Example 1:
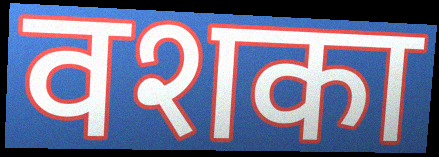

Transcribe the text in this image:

वशका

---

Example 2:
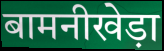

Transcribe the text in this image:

बामनीखेड़ा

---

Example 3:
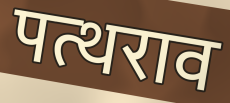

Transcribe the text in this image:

पत्थराव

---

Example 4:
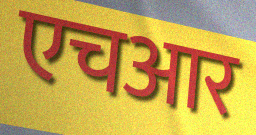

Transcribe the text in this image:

एचआर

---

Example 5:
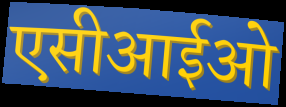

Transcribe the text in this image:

एसीआईओ